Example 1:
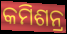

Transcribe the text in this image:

କମିଶନ୍ର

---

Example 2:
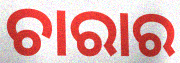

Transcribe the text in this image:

ଚାରାର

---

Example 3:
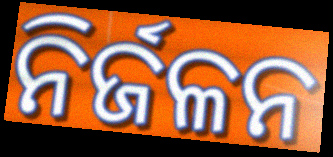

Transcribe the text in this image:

ନିର୍ଜଳନ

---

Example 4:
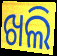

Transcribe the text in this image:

ଖଲି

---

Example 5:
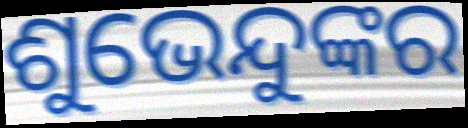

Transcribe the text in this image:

ଶୁଭେନ୍ଦୁଙ୍କର